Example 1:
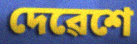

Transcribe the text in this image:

দেৱেশে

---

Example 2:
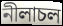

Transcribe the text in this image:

নীলাচল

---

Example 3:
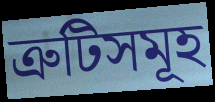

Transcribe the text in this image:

ত্ৰুটিসমূহ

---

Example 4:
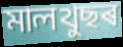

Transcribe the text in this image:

মালথুছৰ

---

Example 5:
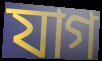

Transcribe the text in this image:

যাগ